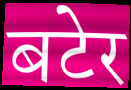
बटेर